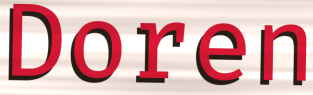
Doren